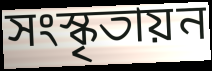
সংস্কৃতায়ন